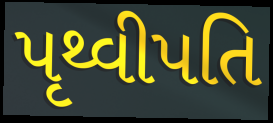
પૃથ્વીપતિ